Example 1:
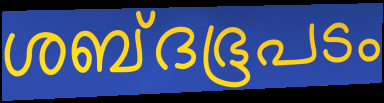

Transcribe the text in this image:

ശബ്ദഭൂപടം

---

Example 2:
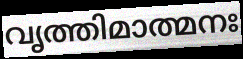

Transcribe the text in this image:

വൃത്തിമാത്മനഃ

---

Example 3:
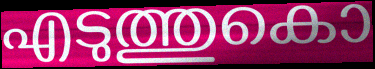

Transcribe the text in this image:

എടുത്തുകൊ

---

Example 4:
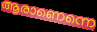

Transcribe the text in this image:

ആരാണെന്നെ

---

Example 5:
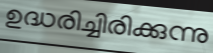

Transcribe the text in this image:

ഉദ്ധരിച്ചിരിക്കുന്നു